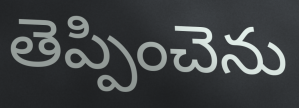
తెప్పించెను